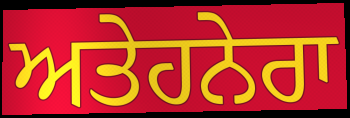
ਅਤੇਹਨੇਰਾ